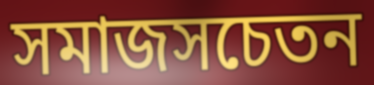
সমাজসচেতন